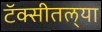
टॅक्सीतल्या